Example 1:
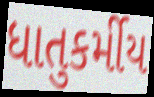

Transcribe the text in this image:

ધાતુકર્મીય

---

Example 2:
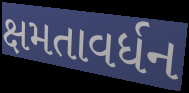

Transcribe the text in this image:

ક્ષમતાવર્ધન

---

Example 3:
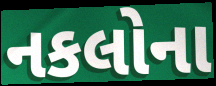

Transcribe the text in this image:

નકલોના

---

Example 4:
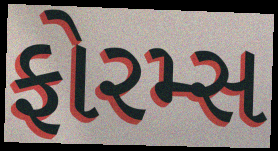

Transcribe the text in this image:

ફોરમ્સ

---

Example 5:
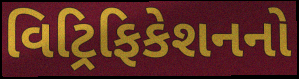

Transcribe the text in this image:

વિટ્રિફિકેશનનો